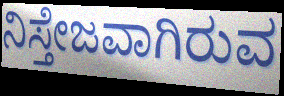
ನಿಸ್ತೇಜವಾಗಿರುವ